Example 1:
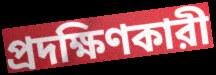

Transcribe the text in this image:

প্রদক্ষিণকারী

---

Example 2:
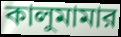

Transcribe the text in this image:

কালুমামার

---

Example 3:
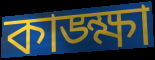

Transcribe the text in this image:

কাঙ্ক্ষা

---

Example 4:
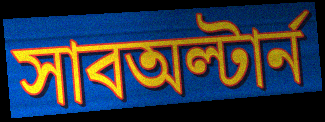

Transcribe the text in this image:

সাবঅল্টার্ন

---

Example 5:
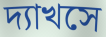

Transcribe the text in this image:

দ্যাখসে